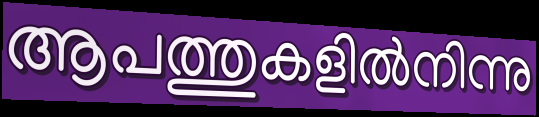
ആപത്തുകളിൽനിന്നു